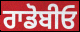
ਰਾਡੋਬੀਓ